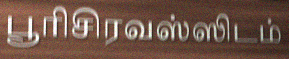
பூரிசிரவஸ்ஸிடம்